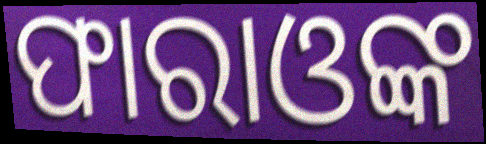
ଫାରାଓଙ୍କ